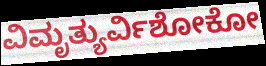
ವಿಮೃತ್ಯುರ್ವಿಶೋಕೋ